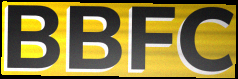
BBFC